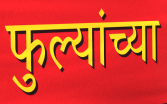
फुल्यांच्या